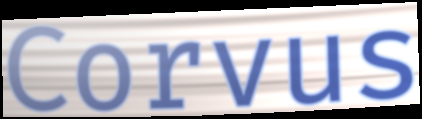
Corvus